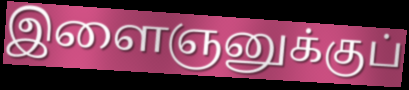
இளைஞனுக்குப்